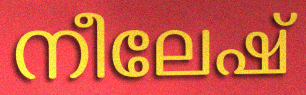
നീലേഷ്